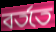
বর্ততে